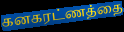
கனகரட்ணத்தை